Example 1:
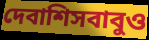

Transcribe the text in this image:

দেবাশিসবাবুও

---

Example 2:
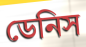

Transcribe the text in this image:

ডেনিস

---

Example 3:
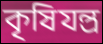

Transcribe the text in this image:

কৃষিযন্ত্র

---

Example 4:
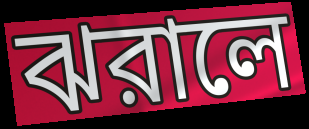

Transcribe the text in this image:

ঝরালে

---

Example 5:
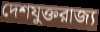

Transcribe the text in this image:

দেশযুক্তরাজ্য